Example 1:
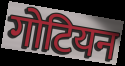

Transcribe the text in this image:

गोटियन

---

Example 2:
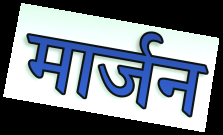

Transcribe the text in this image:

मार्जन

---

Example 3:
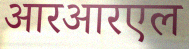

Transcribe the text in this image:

आरआरएल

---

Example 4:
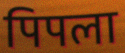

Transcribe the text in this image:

पिपला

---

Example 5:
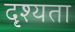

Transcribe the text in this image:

दृश्यता